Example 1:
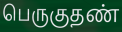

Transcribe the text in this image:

பெருகுதண்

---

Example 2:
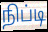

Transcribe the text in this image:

நிப்டி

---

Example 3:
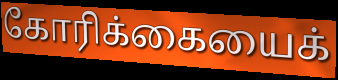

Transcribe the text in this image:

கோரிக்கையைக்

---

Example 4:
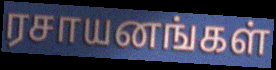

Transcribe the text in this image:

ரசாயனங்கள்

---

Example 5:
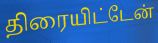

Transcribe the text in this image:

திரையிட்டேன்